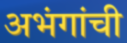
अभंगांची